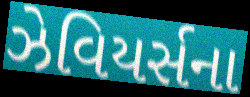
ઝેવિયર્સના